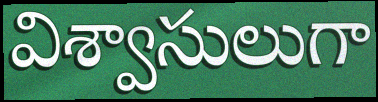
విశ్వాసులుగా